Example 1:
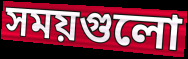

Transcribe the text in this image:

সময়গুলো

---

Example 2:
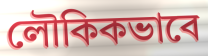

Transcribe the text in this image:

লৌকিকভাবে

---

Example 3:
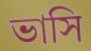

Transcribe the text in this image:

ভাসি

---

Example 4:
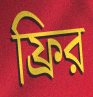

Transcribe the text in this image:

ফ্রির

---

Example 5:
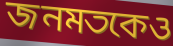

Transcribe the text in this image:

জনমতকেও